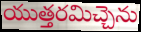
యుత్తరమిచ్చెను